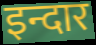
इन्दार